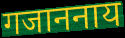
गजाननाय